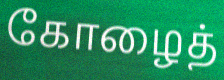
கோழைத்